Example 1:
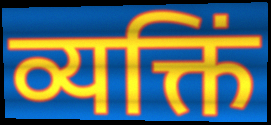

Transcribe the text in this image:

व्यक्तिं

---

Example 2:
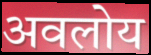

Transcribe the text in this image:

अवलोय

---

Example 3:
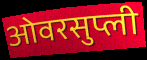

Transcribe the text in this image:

ओवरसुप्ली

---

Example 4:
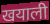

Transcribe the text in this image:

खयाली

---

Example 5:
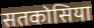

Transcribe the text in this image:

सतकोसिया